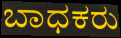
ಬಾಧಕರು